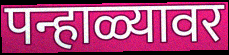
पन्हाळ्यावर